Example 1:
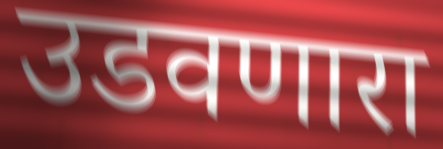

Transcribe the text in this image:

उडवणारा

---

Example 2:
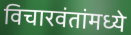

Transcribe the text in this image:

विचारवंतांमध्ये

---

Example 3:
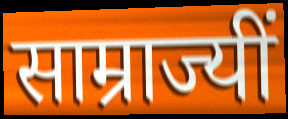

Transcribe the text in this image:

साम्राज्यीं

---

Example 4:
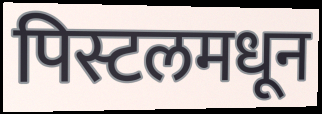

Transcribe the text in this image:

पिस्टलमधून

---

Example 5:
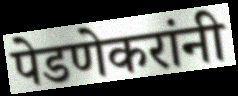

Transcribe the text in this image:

पेडणेकरांनी